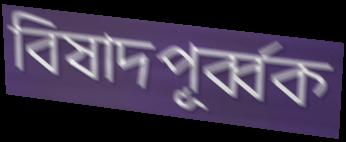
বিষাদপূর্ব্বক